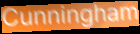
Cunningham